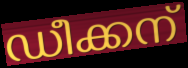
ഡീക്കന്